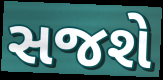
સજશે